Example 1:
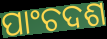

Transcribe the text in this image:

ପାଂଚଦଶ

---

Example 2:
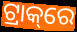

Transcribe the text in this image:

ଟ୍ରାକ୍‌ରେ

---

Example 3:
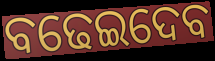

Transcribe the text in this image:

ବଢେଇଦେବ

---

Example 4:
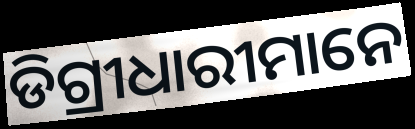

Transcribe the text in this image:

ଡିଗ୍ରୀଧାରୀମାନେ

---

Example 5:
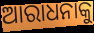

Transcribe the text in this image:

ଆରାଧନାକୁ